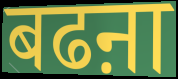
बढऩा